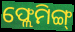
ଫ୍ଲେମିଙ୍ଗ୍